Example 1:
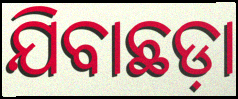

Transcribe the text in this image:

ଯିବାଛଡ଼ା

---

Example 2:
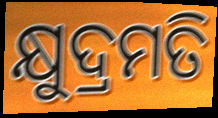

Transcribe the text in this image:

କ୍ଷୁଦ୍ରମତି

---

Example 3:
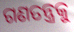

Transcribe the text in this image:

ଗଣତନ୍ତ୍ରକୁ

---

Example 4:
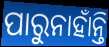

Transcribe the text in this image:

ପାରୁନାହାଁନ୍ତି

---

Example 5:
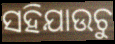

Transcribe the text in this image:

ସହିଯାଉଚୁ